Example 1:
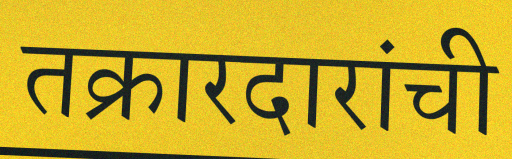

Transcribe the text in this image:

तक्रारदारांची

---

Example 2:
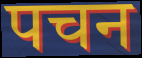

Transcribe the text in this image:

पचन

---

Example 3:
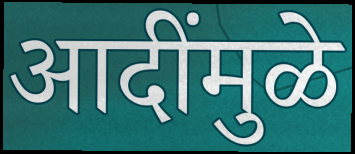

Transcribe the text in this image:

आदींमुळे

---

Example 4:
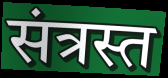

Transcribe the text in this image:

संत्रस्त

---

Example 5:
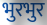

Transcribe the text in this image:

भुरभुर